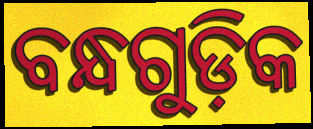
ବନ୍ଧଗୁଡ଼ିକ